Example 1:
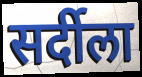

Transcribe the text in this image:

सर्दीला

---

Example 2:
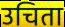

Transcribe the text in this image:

उचिता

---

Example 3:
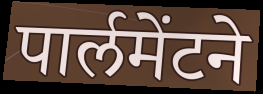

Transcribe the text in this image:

पार्लमेंटने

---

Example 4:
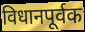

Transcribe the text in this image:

विधानपूर्वक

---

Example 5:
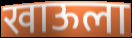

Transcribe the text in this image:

खाऊला